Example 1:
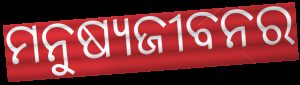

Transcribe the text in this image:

ମନୁଷ୍ୟଜୀବନର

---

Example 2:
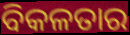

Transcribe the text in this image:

ବିକଳତାର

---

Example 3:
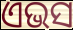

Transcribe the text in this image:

ଏଭସ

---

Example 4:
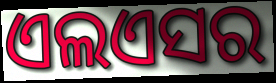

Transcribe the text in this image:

ଏଲଏସର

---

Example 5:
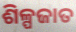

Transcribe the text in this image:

ଶିଳ୍ପଜାତ